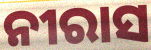
ନୀରାସ